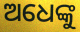
ଅଧେଙ୍କୁ